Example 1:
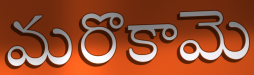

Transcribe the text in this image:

మరొకామె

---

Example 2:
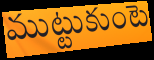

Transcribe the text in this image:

ముట్టుకుంటె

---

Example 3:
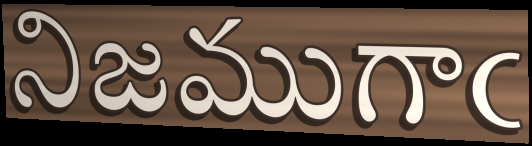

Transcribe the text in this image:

నిజముగాఁ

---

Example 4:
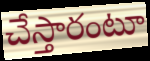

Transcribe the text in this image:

చేస్తారంటూ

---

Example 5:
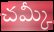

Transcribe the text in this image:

చమ్కీ